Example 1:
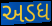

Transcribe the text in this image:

અડધ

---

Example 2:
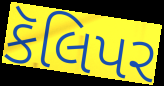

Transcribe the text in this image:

કૅલિપર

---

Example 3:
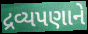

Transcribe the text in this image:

દ્રવ્યપણાને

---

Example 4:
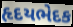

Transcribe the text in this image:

હૃદયભેદક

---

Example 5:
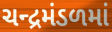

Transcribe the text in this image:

ચન્દ્રમંડળમાં